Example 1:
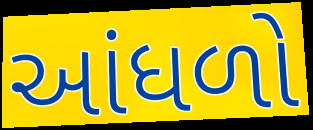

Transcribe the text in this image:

આંધળો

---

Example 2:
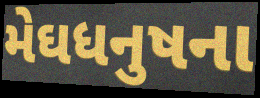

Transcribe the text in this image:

મેઘધનુષના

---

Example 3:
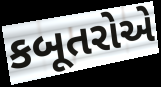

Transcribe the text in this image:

કબૂતરોએ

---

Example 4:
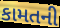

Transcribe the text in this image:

કામતની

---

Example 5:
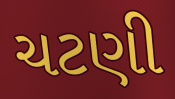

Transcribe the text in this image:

ચટણી